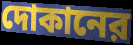
দোকানের